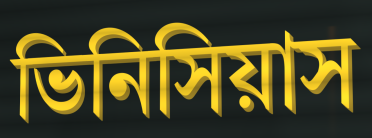
ভিনিসিয়াস